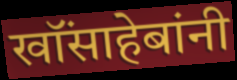
खॉंसाहेबांनी